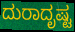
ದುರಾದೃಷ್ಟ